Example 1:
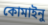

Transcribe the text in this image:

কোমাইনু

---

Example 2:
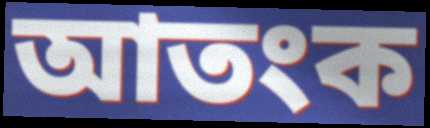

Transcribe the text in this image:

আতংক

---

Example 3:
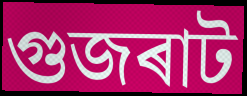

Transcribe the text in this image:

গুজৰাট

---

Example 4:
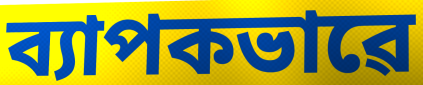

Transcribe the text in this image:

ব্যাপকভাৱে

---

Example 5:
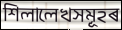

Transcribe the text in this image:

শিলালেখসমূহৰ